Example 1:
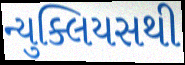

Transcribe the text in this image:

ન્યુક્લિયસથી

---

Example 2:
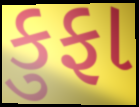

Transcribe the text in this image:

કુફા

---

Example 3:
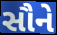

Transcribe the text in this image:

સૌને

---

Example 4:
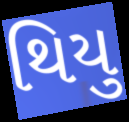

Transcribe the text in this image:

થિયુ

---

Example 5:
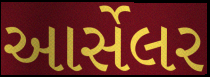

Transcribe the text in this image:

આર્સેલર